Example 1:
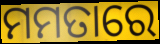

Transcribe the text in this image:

ମମତାରେ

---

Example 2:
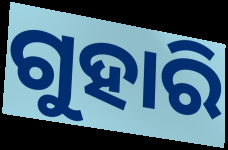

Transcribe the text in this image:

ଗୁହାରି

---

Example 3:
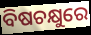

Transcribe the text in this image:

ବିଷଚକ୍ଷୁରେ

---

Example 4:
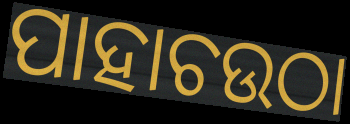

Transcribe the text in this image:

ପାହାଚଉଠା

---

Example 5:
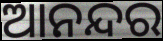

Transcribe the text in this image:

ଆନନ୍ଦର